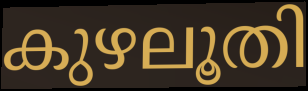
കുഴലൂതി